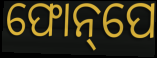
ଫୋନ୍‌ପେ